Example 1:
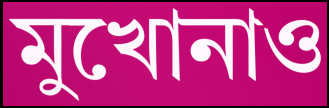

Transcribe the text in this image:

মুখোনাও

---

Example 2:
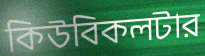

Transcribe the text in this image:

কিউবিকলটার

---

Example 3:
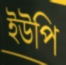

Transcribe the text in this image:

ইউপি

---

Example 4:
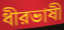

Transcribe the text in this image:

ধীরভাষী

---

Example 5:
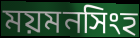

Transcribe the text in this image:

ময়মনসিংহ